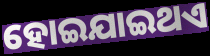
ହୋଇଯାଇଥଏ